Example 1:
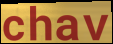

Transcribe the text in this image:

chav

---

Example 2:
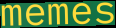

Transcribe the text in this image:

memes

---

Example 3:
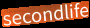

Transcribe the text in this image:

secondlife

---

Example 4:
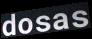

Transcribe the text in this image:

dosas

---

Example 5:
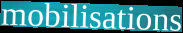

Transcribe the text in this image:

mobilisations